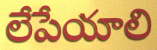
లేపేయాలి